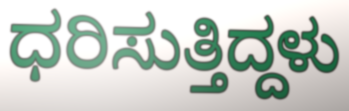
ಧರಿಸುತ್ತಿದ್ದಳು